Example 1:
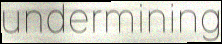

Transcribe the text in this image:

undermining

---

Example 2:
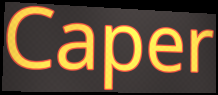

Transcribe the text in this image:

Caper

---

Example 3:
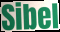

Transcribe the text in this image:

Sibel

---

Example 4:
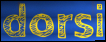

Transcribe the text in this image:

dorsi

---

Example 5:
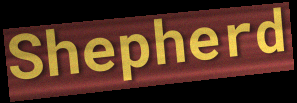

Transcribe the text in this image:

Shepherd